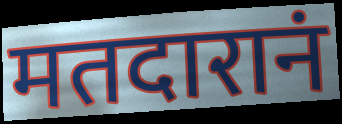
मतदारानं